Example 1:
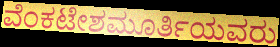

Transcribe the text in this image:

ವೆಂಕಟೇಶಮೂರ್ತಿಯವರು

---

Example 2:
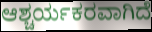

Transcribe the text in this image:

ಆಶ್ಚರ್ಯಕರವಾಗಿದೆ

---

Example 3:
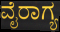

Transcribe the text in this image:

ವೈರಾಗ್ಯ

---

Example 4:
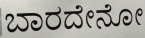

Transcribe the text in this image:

ಬಾರದೇನೋ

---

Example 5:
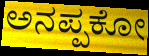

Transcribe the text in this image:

ಅನಪ್ಪಕೋ